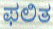
ಫಲಿತ